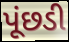
પૂંછડી